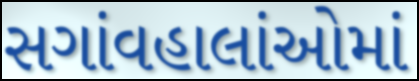
સગાંવહાલાંઓમાં